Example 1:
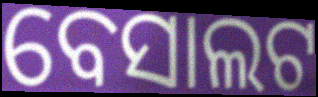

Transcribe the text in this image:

ବେସାଲଟ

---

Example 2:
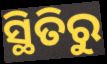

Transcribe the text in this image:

ସ୍ଥିତିରୁ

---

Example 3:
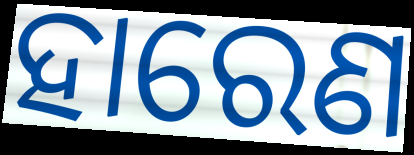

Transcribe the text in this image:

ହାରେଣ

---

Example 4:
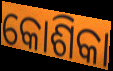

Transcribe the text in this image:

କୋଶିକା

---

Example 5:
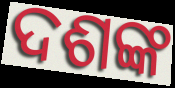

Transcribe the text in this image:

ଦଶଙ୍କ